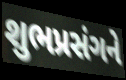
શુભપ્રસંગને